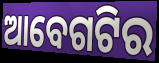
ଆବେଗଟିର